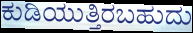
ಕುಡಿಯುತ್ತಿರಬಹುದು